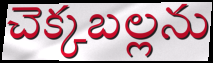
చెక్కబల్లను